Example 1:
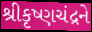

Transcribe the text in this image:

શ્રીકૃષ્ણચંદ્રને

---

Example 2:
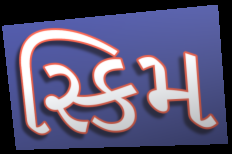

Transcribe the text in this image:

સ્કિમ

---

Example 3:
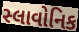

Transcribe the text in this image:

સ્લાવોનિક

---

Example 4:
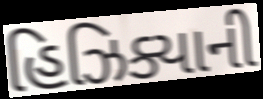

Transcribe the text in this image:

હિઝિક્યાની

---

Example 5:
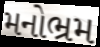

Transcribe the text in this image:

મનોભ્રમ